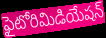
ఫైటోరిమిడియేషన్